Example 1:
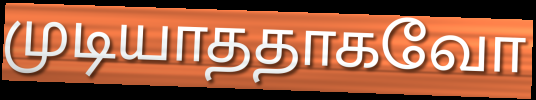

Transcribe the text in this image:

முடியாததாகவோ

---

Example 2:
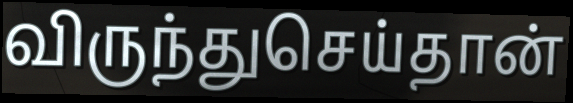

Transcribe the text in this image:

விருந்துசெய்தான்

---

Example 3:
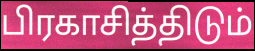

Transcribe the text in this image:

பிரகாசித்திடும்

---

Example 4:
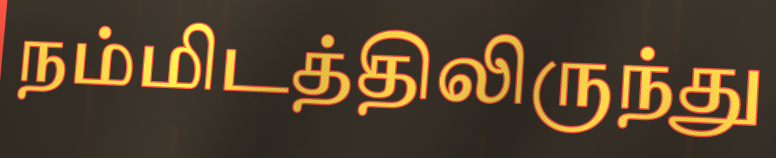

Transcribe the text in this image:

நம்மிடத்திலிருந்து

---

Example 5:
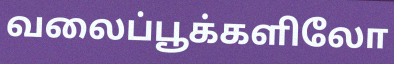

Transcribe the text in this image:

வலைப்பூக்களிலோ